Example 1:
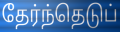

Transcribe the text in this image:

தேர்ந்தெடுப்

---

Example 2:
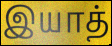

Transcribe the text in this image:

இயாத்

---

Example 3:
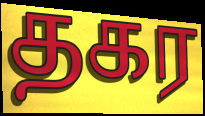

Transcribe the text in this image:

தகர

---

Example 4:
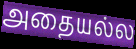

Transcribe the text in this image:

அதையல்ல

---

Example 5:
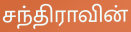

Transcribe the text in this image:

சந்திராவின்